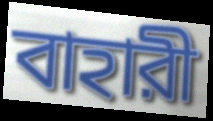
বাহারী